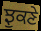
ਝੁਕਣੇ